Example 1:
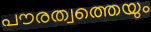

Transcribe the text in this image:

പൗരത്വത്തെയും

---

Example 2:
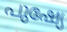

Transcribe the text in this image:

പുഷ്യേ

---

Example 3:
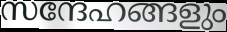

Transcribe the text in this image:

സന്ദേഹങ്ങളും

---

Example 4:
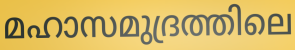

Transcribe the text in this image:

മഹാസമുദ്രത്തിലെ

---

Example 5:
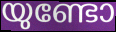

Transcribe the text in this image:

യുണ്ടോ